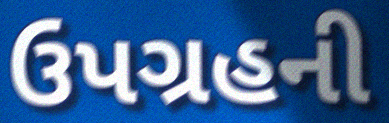
ઉપગ્રહની